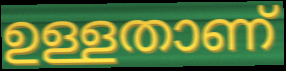
ഉള്ളതാണ്